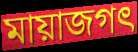
মায়াজগৎ